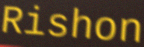
Rishon